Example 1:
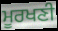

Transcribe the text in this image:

ਮੂਰਖਣੀ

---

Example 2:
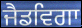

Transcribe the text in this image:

ਜੈਡਵਿਗਾ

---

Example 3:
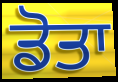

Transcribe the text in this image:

ਡੋਤਾ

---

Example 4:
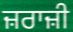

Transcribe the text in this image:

ਜ਼ਰਾਜ਼ੀ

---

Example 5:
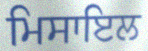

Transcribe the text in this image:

ਮਿਸਾਇਲ